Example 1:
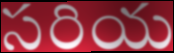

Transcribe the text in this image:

సరియ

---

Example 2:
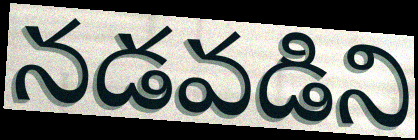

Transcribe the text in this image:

నడవడిని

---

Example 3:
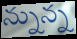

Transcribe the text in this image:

న్నున్న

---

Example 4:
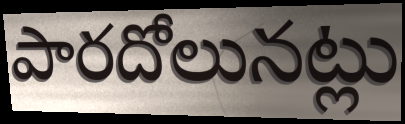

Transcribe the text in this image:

పారదోలునట్లు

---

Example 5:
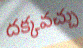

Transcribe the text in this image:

దక్కవచ్చు